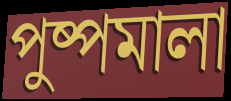
পুষ্পমালা